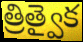
త్రిత్వైక